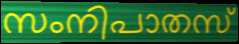
സംനിപാതസ്